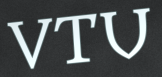
VTU